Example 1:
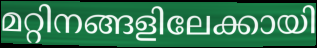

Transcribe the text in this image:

മറ്റിനങ്ങളിലേക്കായി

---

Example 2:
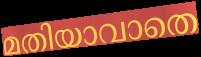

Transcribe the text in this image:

മതിയാവാതെ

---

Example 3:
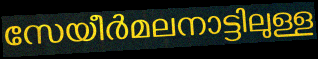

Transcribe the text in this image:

സേയീർമലനാട്ടിലുള്ള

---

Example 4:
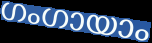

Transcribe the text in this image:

ഗംഗായാം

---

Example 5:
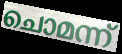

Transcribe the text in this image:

ചൊമന്ന്